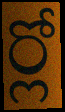
ర్లో